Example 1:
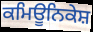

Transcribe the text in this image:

ਕਮਿਊਨਿਕੇਸ਼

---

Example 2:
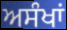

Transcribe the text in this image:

ਅਸੰਖਾਂ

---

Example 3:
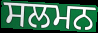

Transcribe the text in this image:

ਸਲਮਨ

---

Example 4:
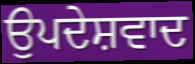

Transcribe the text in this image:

ਉਪਦੇਸ਼ਵਾਦ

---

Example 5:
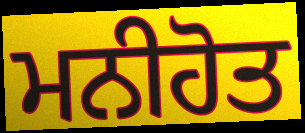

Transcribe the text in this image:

ਮਨੀਹੋਤ